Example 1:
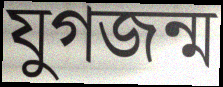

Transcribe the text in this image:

যুগজন্ম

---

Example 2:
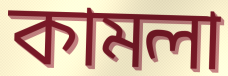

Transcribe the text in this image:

কামলা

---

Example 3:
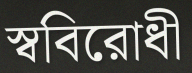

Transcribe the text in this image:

স্ববিরোধী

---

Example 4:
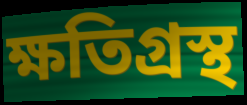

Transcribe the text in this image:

ক্ষতিগ্রস্থ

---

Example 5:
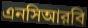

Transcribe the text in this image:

এনসিআরবি